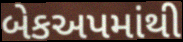
બેકઅપમાંથી